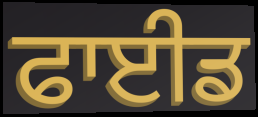
ਫਾਈਡ